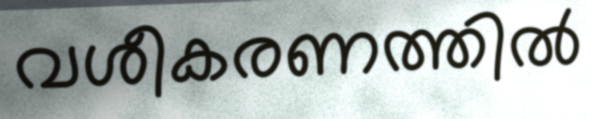
വശീകരണത്തിൽ